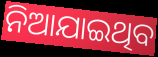
ନିଆଯାଇଥିବ